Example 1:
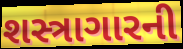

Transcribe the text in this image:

શસ્ત્રાગારની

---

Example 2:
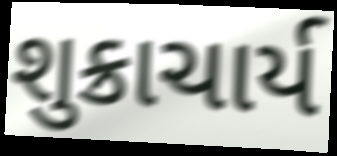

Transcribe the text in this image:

શુક્રાચાર્ય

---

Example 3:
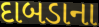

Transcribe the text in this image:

દાબડાના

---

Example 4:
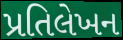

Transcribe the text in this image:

પ્રતિલેખન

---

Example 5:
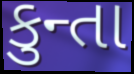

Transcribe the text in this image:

કુન્તા